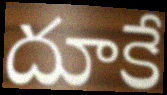
దూకే